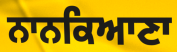
ਨਾਨਕਿਆਣਾ